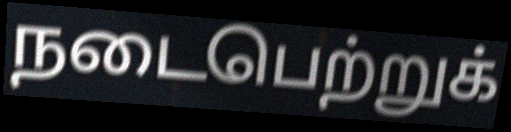
நடைபெற்றுக்